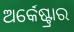
ଅର୍କେଷ୍ଟ୍ରାର